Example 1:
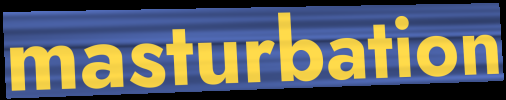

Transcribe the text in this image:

masturbation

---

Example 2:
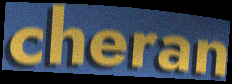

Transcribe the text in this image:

cheran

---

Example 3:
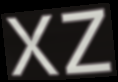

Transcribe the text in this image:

xz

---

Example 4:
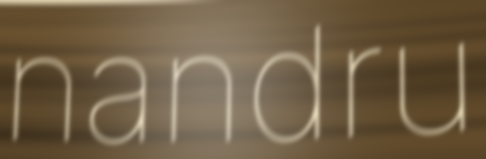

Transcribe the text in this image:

nandru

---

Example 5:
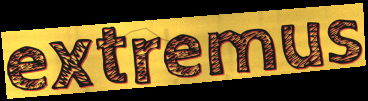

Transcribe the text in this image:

extremus